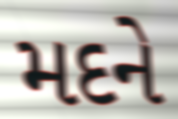
મદને